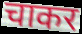
चाकर